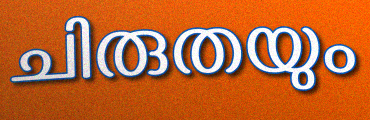
ചിരുതയും